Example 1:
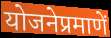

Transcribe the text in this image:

योजनेप्रमाणें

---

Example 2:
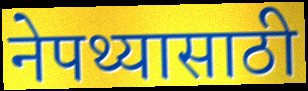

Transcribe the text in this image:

नेपथ्यासाठी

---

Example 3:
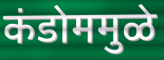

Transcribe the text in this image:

कंडोममुळे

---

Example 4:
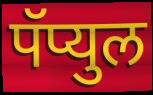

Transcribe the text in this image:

पॅप्युल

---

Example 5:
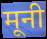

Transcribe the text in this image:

मूनी